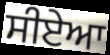
ਸੀਏਆ